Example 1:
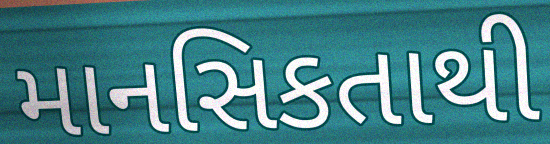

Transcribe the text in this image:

માનસિકતાથી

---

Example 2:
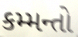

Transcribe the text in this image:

કમ્મન્તો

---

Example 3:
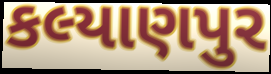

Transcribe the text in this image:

કલ્યાણપુર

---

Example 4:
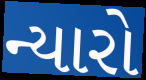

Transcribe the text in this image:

ન્યારો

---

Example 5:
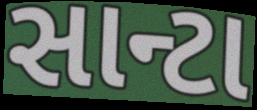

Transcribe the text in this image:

સાન્ટા